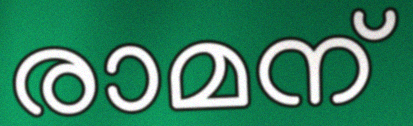
രാമന്